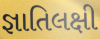
જ્ઞાતિલક્ષી